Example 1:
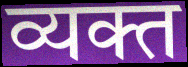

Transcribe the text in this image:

व्यक्‍त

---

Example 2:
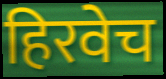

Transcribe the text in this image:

हिरवेच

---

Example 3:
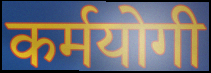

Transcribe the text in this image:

कर्मयोगी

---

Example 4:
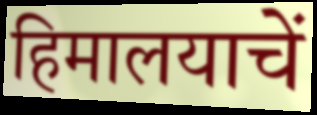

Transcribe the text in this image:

हिमालयाचें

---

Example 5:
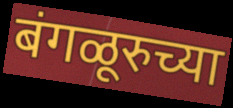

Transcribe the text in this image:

बंगळूरुच्या